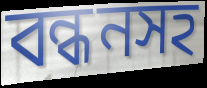
বন্ধনসহ